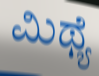
ಮಿಥ್ಯೆ